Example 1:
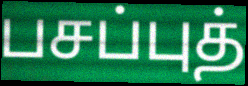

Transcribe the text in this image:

பசப்புத்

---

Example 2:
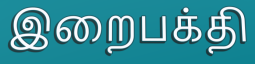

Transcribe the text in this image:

இறைபக்தி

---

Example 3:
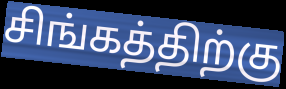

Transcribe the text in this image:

சிங்கத்திற்கு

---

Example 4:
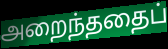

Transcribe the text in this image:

அறைந்ததைப்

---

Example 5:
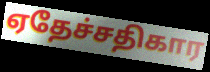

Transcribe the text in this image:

ஏதேச்சதிகார